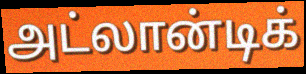
அட்லான்டிக்